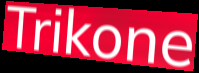
Trikone